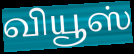
வியூஸ்